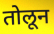
तोलून